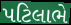
પટિલાભે